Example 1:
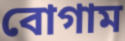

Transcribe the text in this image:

বোগাম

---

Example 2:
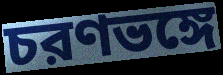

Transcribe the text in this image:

চরণভঙ্গে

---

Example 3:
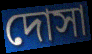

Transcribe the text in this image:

দোসা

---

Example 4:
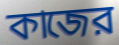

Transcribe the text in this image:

কাজের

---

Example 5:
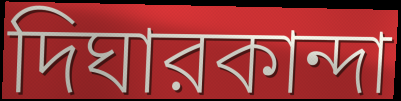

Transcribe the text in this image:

দিঘারকান্দা